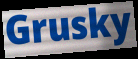
Grusky